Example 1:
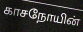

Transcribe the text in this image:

காசநோயின்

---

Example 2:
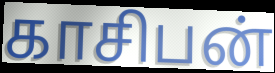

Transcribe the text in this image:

காசிபன்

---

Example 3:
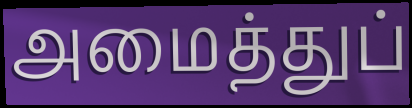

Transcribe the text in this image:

அமைத்துப்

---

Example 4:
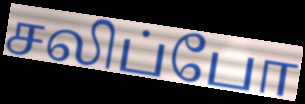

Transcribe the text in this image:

சலிப்போ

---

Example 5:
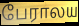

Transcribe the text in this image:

பேராலய